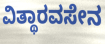
ವಿತ್ಥಾರವಸೇನ